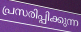
പ്രസരിപ്പിക്കുന്ന